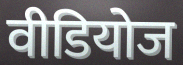
वीडियोज